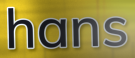
hans